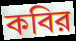
কবির